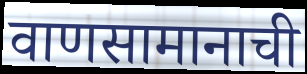
वाणसामानाची